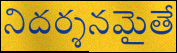
నిదర్శనమైతే